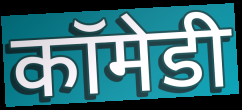
कॉमेडी